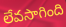
లేవసాగింది